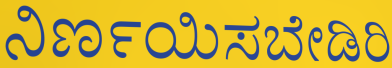
ನಿರ್ಣಯಿಸಬೇಡಿರಿ